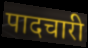
पादचारी